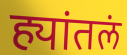
ह्यांतलं